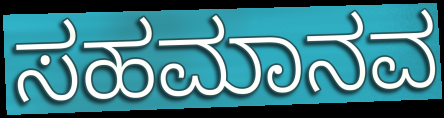
ಸಹಮಾನವ